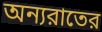
অন্যরাতের